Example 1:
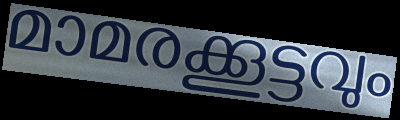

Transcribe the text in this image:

മാമരക്കൂട്ടവും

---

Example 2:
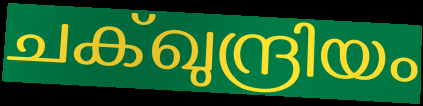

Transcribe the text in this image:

ചക്ഖുന്ദ്രിയം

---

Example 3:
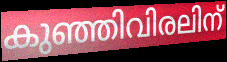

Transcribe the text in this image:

കുഞ്ഞിവിരലിന്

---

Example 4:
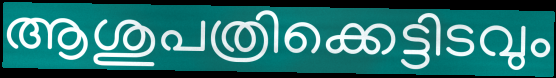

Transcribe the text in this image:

ആശുപത്രിക്കെട്ടിടവും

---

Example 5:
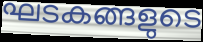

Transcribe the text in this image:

ഘടകങ്ങളുടെ